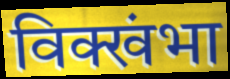
विक्खंभा